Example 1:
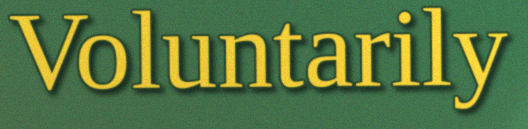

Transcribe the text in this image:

Voluntarily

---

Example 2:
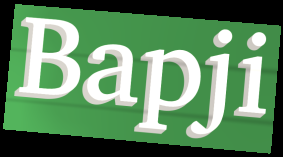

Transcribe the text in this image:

Bapji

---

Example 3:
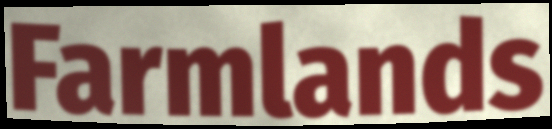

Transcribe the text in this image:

Farmlands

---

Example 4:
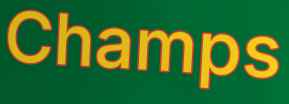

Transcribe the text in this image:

Champs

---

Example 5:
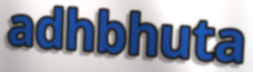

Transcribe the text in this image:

adhbhuta